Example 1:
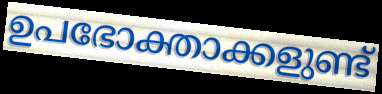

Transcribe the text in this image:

ഉപഭോക്താക്കളുണ്ട്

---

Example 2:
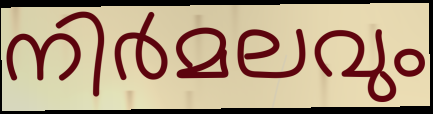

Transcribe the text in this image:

നിർമലവും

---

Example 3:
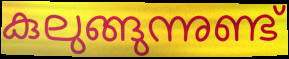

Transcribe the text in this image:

കുലുങ്ങുന്നുണ്ട്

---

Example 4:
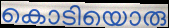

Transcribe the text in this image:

കൊടിയൊരു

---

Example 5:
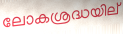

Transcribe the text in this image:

ലോകശ്രദ്ധയില്